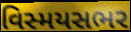
વિસ્મયસભર